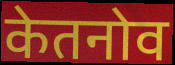
केतनोव